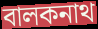
বালকনাথ